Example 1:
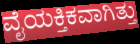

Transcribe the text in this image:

ವೈಯಕ್ತಿಕವಾಗಿತ್ತು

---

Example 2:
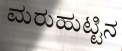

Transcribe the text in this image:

ಮರುಹುಟ್ಟಿನ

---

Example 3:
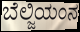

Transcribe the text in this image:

ಬೆಲ್ಜಿಯಂನ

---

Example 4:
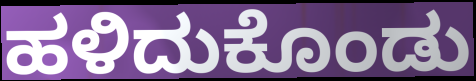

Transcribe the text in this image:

ಹಳಿದುಕೊಂಡು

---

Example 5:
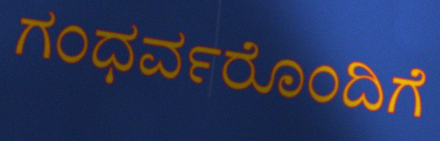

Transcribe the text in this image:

ಗಂಧರ್ವರೊಂದಿಗೆ